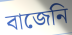
বাজেনি